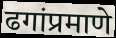
ढगांप्रमाणे